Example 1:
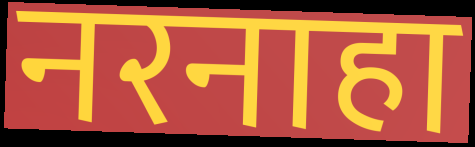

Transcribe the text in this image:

नरनाहा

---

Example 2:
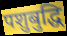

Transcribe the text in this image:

पशुबुद्धि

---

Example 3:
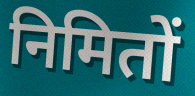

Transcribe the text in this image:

निमितों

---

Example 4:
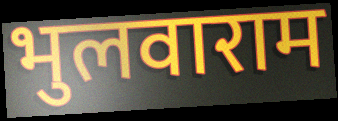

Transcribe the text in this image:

भुलवाराम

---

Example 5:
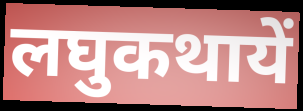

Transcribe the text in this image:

लघुकथायें